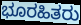
ಭೂರಹಿತರು